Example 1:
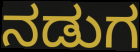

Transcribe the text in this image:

ನಡುಗ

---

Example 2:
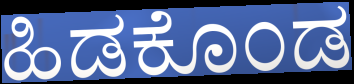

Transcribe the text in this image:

ಹಿಡಕೊಂಡ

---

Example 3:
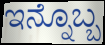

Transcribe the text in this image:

ಇನ್ನೊಬ್ಬ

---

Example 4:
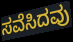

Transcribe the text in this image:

ಸವೆಸಿದವು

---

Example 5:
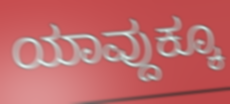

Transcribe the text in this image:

ಯಾವ್ದುಕ್ಕೂ